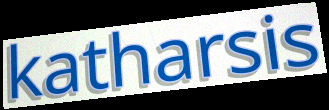
katharsis